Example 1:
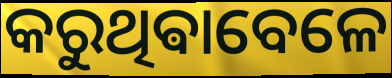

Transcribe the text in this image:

କରୁଥିଵାବେଳେ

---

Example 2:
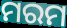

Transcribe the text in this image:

ମରମ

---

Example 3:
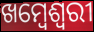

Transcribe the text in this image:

ଖମ୍ବେଶ୍ଵରୀ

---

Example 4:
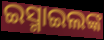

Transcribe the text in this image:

ଇସ୍ମାଇଲଙ୍କ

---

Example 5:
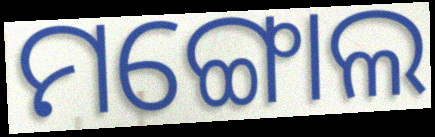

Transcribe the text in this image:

ମଙ୍ଗୋଲ